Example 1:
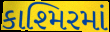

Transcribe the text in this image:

કાશ્મિરમાં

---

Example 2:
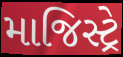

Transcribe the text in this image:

માજિસ્ટ્રે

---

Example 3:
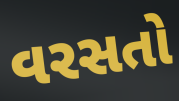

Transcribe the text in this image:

વરસતો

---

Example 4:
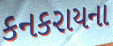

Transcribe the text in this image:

કનકરાયના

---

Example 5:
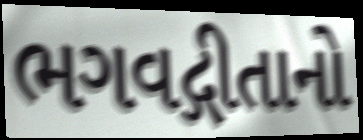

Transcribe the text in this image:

ભગવદ્ગીતાનો